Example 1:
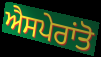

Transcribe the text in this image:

ਐਸਪੇਰਾਂਤੋ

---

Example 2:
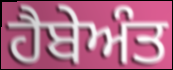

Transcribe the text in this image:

ਹੈਬੇਅੰਤ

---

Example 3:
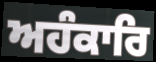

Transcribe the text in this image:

ਅਹੰਕਾਰਿ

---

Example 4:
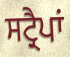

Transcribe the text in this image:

ਸਟ੍ਰੈਪਾਂ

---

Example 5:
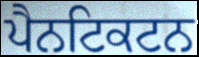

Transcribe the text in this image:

ਪੈਨਟਿਕਟਨ